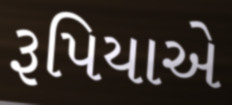
રૂપિયાએ